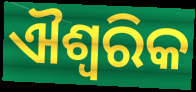
ଐଶ୍ବରିକ